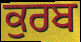
ਕੁਰਬ